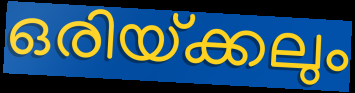
ഒരിയ്‌ക്കലും